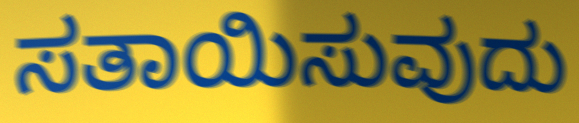
ಸತಾಯಿಸುವುದು